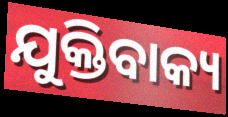
ଯୁକ୍ତିବାକ୍ୟ